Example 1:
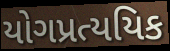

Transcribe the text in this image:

યોગપ્રત્યયિક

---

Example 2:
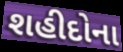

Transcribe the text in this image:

શહીદોના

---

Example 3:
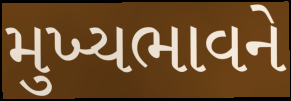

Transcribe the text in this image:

મુખ્યભાવને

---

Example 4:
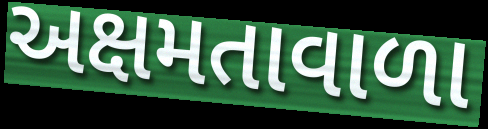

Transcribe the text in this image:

અક્ષમતાવાળા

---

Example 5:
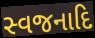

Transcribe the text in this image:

સ્વજનાદિ